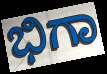
ಭಿಗಾ